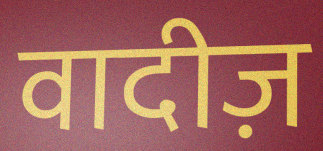
वादीज़